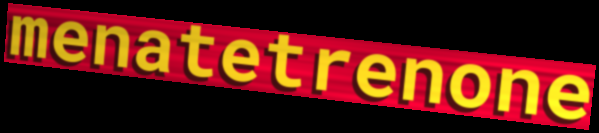
menatetrenone